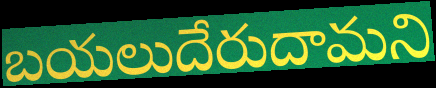
బయలుదేరుదామని